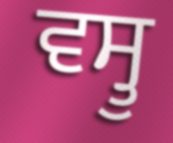
ਵਸ੍ਤੁ